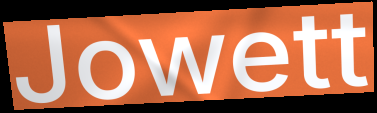
Jowett